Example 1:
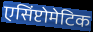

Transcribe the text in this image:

एसिंप्टोमेटिक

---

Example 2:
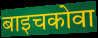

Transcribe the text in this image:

बाइचकोवा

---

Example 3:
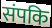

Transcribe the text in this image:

संपकि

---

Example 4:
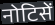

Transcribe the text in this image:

नोटिसें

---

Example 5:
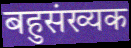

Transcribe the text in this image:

बहुसंख्यक